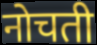
नोचती